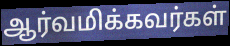
ஆர்வமிக்கவர்கள்